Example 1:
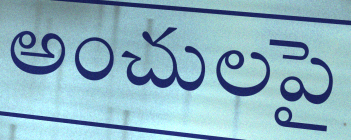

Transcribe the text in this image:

అంచులపై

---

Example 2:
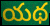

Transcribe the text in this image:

యథ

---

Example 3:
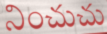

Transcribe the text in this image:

నించుచు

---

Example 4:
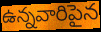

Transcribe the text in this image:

ఉన్నవారిపైన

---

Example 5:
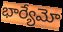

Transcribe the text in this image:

భార్యేమో